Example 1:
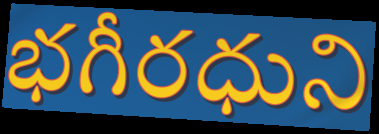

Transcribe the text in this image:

భగీరధుని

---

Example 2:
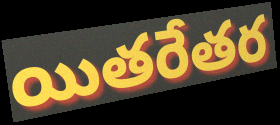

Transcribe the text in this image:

యితరేతర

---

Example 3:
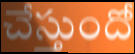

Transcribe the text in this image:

చేస్తుందో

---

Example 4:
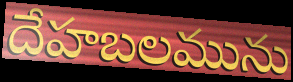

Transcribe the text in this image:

దేహబలమును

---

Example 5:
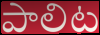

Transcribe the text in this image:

పాలిట